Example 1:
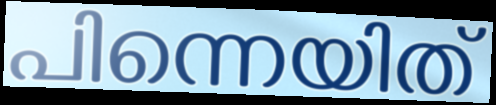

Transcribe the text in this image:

പിന്നെയിത്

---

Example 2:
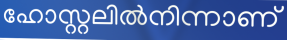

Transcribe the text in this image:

ഹോസ്റ്റലിൽനിന്നാണ്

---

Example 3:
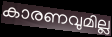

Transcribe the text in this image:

കാരണവുമില്ല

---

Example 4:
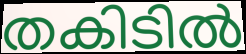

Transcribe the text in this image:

തകിടിൽ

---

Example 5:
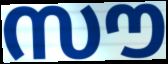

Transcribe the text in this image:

സൗ